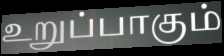
உறுப்பாகும்